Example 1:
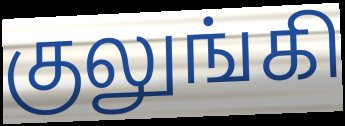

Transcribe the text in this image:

குலுங்கி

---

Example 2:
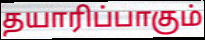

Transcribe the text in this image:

தயாரிப்பாகும்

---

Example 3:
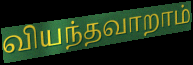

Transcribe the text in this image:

வியந்தவாறாம்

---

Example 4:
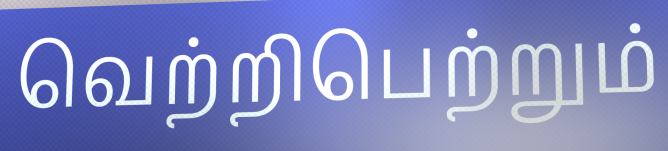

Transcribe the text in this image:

வெற்றிபெற்றும்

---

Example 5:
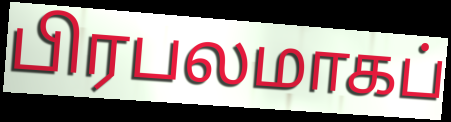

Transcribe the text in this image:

பிரபலமாகப்